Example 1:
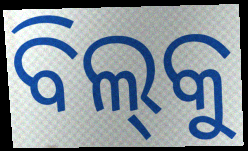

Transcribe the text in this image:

ବିଲ୍‌କୁ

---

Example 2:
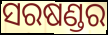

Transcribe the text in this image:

ସରଷଣ୍ଡର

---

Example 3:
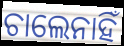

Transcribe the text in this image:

ଚାଲେନାହିଁ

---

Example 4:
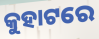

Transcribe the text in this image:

କୁହାଟରେ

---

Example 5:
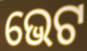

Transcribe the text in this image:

ଭେଟ